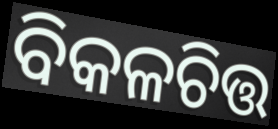
ବିକଳଚିତ୍ତ